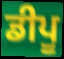
ਡੀਪੂ